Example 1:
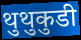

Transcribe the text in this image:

थुथुकुडी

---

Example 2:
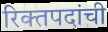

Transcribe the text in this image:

रिक्तपदांची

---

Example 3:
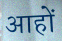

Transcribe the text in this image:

आहों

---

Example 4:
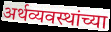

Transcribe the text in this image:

अर्थव्यवस्थांच्या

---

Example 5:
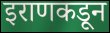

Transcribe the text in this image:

इराणकडून